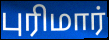
புரிமார்